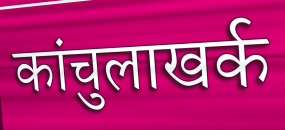
कांचुलाखर्क